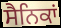
ਸੈਨਿਕਾਂ